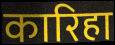
कारिहा